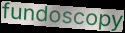
fundoscopy